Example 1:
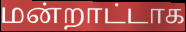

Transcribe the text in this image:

மன்றாட்டாக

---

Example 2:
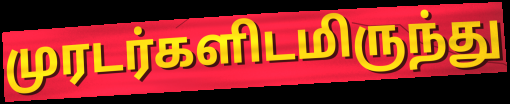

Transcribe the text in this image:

முரடர்களிடமிருந்து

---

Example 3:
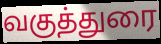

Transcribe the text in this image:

வகுத்துரை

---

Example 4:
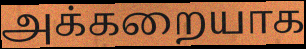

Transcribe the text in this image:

அக்கறையாக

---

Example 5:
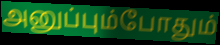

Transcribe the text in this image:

அனுப்பும்போதும்